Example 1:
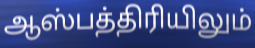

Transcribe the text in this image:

ஆஸ்பத்திரியிலும்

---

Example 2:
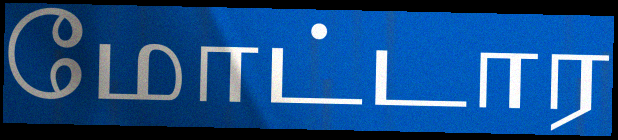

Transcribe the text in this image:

மோட்டார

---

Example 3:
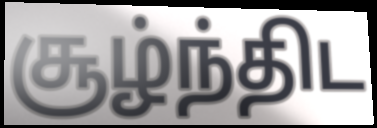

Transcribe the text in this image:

சூழ்ந்திட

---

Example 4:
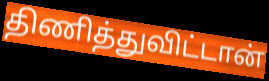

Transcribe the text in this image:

திணித்துவிட்டான்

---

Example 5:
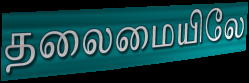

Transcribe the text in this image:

தலைமையிலே